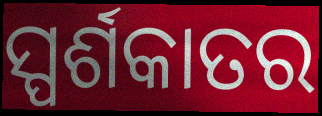
ସ୍ପର୍ଶକାତର